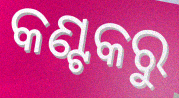
କଣ୍ଟକରୁ